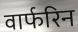
वार्फरिन